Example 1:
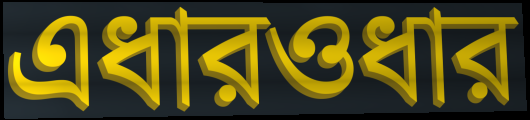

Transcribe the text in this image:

এধারওধার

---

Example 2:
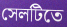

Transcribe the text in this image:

সেলটিতে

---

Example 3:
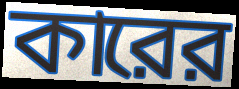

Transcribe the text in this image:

কারের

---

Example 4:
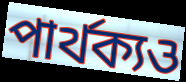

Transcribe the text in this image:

পার্থক্যও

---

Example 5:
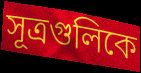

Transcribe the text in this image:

সূত্রগুলিকে